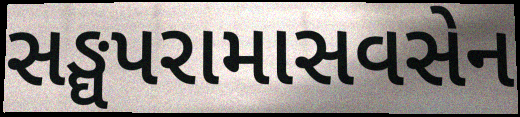
સઙ્ઘપરામાસવસેન